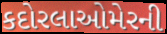
કદોરલાઓમેરની